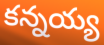
కన్నయ్య